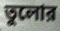
তুলোর